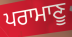
ਪਰਾਮਾਣੂ